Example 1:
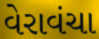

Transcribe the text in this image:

વેરાવંચા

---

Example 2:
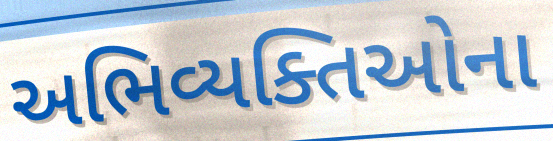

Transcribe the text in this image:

અભિવ્યક્તિઓના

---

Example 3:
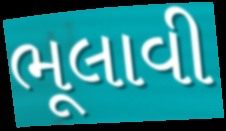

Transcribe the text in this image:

ભૂલાવી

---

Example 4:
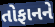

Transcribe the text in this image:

તોફાનને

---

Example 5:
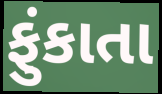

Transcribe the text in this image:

ફુંકાતા